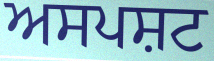
ਅਸਪਸ਼ਟ